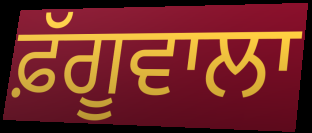
ਫ਼ੱਗੂਵਾਲਾ